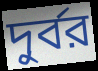
দুর্বর